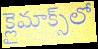
క్లైమాక్స్‌లో